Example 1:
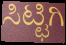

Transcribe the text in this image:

ಸಿಟ್ಟಿಗಿ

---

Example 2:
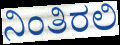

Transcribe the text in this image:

ನಿಂತಿರಲಿ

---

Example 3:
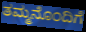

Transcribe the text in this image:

ತಮ್ಮನೊಂದಿಗೆ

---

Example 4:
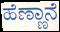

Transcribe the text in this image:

ಹೆಣ್ಣಾನೆ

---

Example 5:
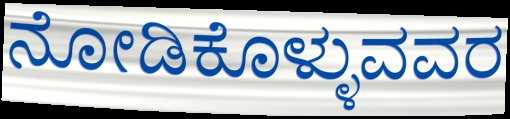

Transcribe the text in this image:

ನೋಡಿಕೊಳ್ಳುವವರ